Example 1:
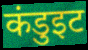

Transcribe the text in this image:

कंडुइट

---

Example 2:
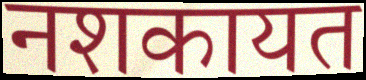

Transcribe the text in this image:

नशकायत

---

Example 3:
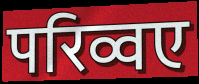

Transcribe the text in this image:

परिव्वए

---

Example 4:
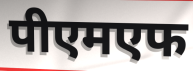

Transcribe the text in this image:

पीएमएफ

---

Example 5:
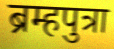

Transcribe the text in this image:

ब्रम्हपुत्रा